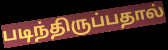
படிந்திருப்பதால்